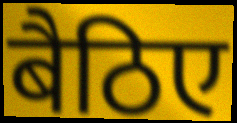
बैठिए